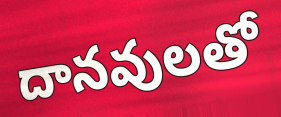
దానవులతో